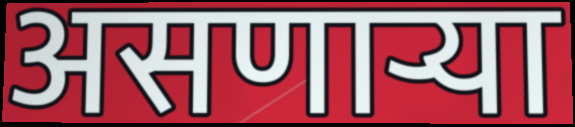
असणाऱ्या